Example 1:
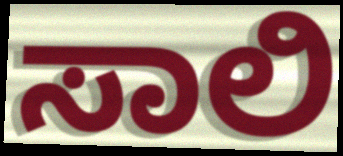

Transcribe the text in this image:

ಸಾಲಿ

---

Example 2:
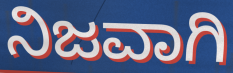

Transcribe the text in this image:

ನಿಜವಾಗಿ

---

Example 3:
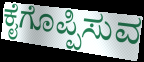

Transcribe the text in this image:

ಕೈಗೊಪ್ಪಿಸುವ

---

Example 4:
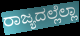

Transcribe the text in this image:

ರಾಜ್ಯದಲ್ಲೆಲ್ಲಾ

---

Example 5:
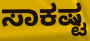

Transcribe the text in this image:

ಸಾಕಷ್ಟ